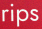
rips